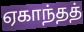
ஏகாந்தத்